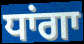
ਧਾਂਗਾ